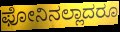
ಫೋನಿನಲ್ಲಾದರೂ